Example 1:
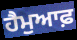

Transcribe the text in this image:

ਹੈਮੁਆਫ਼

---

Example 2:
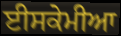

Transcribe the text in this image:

ਈਸਕੇਮੀਆ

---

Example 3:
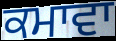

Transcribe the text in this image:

ਕਮਾਵਾ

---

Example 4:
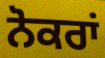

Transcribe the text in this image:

ਨੋਕਰਾਂ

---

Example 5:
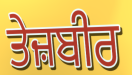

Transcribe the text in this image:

ਤੇਜ਼ਬੀਰ